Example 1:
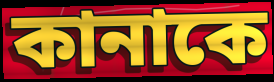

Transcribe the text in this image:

কানাকে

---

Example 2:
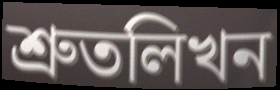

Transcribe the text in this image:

শ্রুতলিখন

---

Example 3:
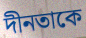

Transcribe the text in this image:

দীনতাকে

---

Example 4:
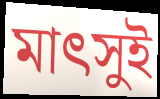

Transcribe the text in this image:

মাৎসুই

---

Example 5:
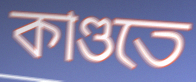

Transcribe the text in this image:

কাণ্ডতে